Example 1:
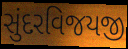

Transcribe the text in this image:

સુંદરવિજયજી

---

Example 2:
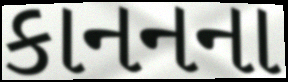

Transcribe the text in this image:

કાનનના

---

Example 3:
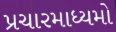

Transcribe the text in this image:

પ્રચારમાધ્યમો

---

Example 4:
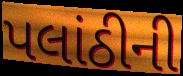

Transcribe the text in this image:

પલાંઠીની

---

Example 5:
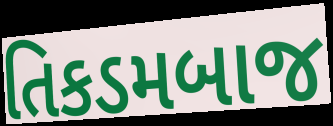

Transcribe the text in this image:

તિકડમબાજ